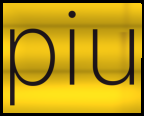
piu